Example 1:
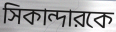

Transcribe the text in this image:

সিকান্দারকে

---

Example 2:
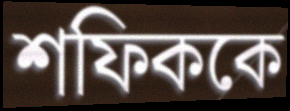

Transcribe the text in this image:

শফিককে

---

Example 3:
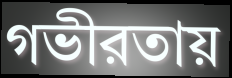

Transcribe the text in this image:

গভীরতায়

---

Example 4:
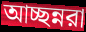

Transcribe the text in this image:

আচ্ছন্নরা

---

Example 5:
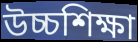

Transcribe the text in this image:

উচ্চশিক্ষা